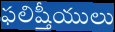
ఫలిష్తీయులు